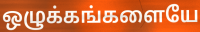
ஒழுக்கங்களையே